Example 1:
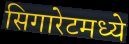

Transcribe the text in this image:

सिगारेटमध्ये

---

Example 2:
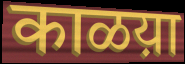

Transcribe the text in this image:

काळय़ा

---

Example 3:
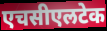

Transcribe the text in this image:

एचसीएलटेक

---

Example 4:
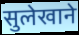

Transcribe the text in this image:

सुलेखाने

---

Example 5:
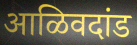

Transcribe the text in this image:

आळिवदांड